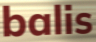
balis